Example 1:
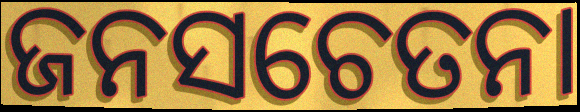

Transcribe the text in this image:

ଜନସଚେତନା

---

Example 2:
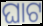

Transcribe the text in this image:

ଘାଟ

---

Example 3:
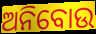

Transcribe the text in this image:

ଅନିବୋଉ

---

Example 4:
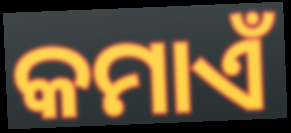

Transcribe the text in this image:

କମାଏଁ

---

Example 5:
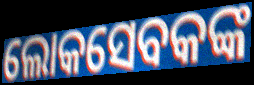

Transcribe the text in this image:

ଲୋକସେବକଙ୍କ